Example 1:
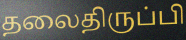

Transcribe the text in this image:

தலைதிருப்பி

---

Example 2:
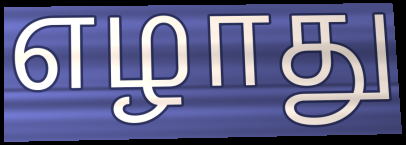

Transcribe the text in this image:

எழாது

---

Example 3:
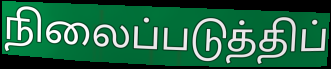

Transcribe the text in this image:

நிலைப்படுத்திப்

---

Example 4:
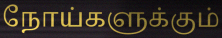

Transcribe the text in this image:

நோய்களுக்கும்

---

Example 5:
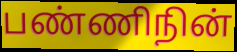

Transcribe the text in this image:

பண்ணிநின்